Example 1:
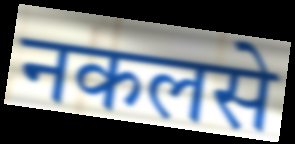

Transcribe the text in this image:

नकलसे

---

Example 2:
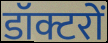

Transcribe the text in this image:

डॉक्टरों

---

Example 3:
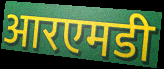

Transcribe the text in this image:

आरएमडी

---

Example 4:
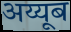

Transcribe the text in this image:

अय्यूब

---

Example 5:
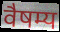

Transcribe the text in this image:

वैषम्‍य